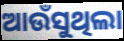
ଆଉଁସୁଥିଲା